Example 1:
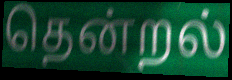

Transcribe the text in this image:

தென்றல்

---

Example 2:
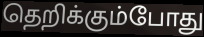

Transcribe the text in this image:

தெறிக்கும்போது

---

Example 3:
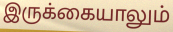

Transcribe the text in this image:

இருக்கையாலும்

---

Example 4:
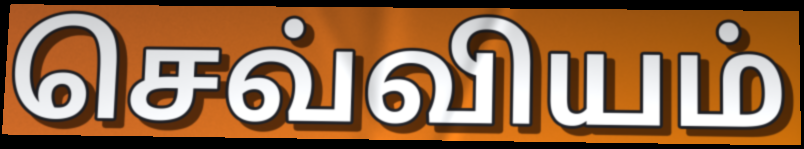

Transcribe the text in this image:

செவ்வியம்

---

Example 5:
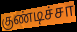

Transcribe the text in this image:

குண்டிச்சா